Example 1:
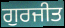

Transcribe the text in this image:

ਗੁਰਜੀਤ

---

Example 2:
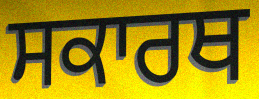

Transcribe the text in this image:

ਸਕਾਰਥ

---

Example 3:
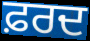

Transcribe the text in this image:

ਫ਼ਰਦ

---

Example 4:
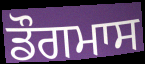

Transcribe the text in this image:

ਡੌਗਮਾਸ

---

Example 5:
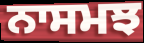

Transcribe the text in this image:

ਨਾਸਮਝ